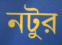
নটুর